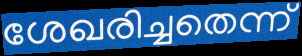
ശേഖരിച്ചതെന്ന്